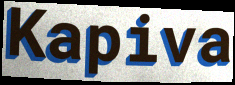
Kapiva